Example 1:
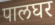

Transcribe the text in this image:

पालघर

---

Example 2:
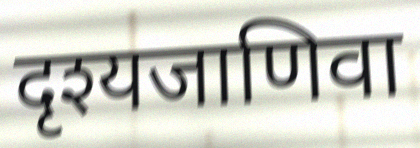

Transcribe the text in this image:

दृश्यजाणिवा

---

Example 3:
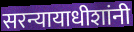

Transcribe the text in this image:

सरन्यायाधीशांनी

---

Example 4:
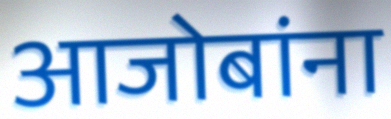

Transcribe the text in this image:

आजोबांना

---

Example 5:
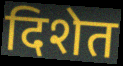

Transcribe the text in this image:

दिशेत